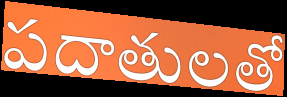
పదాతులతో